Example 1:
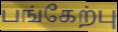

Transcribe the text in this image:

பங்கேற்பு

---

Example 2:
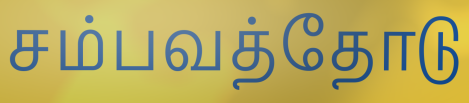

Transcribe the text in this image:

சம்பவத்தோடு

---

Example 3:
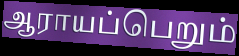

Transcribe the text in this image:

ஆராயப்பெறும்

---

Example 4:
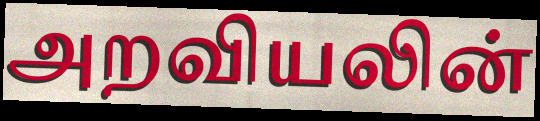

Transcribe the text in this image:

அறவியலின்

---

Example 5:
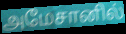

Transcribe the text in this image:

அமேசானில்